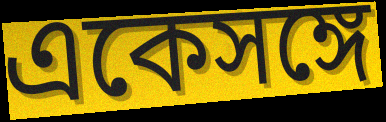
একেসঙ্গে